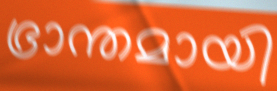
ഭ്രാന്തമായി